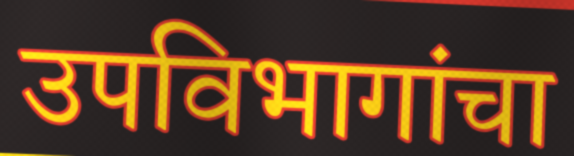
उपविभागांचा